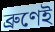
ব্ৰুণেই